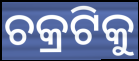
ଚକ୍ରଟିକୁ